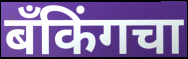
बँकिंगचा